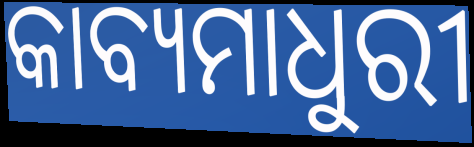
କାବ୍ୟମାଧୁରୀ